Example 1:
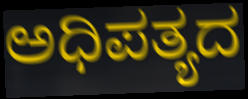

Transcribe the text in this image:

ಅಧಿಪತ್ಯದ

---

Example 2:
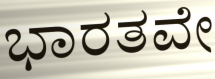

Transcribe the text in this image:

ಭಾರತವೇ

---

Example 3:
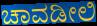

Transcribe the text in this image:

ಚಾವಡೀಲಿ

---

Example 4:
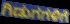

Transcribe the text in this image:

ಗಿಡುಗಗಳಿಗೆ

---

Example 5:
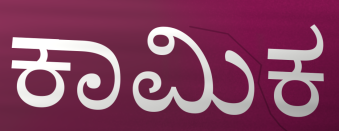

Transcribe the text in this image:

ಕಾಮಿಕ